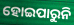
ହୋଇପାରୁନି